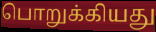
பொறுக்கியது